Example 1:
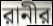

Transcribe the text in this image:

রানীর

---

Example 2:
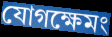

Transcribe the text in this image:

যোগক্ষেমং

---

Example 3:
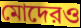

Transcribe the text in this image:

মোদেরও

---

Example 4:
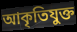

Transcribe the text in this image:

আকৃতিযুক্ত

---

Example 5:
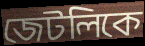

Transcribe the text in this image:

জেটলিকে